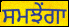
ਸਮਝੇਂਗਾ